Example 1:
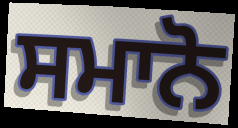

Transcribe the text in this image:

ਸਮਾਨੋ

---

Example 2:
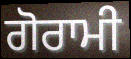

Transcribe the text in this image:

ਗੋਰਾਮੀ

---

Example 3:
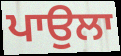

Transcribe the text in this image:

ਪਾਉਲਾ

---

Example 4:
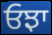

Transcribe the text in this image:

ਓਝਾ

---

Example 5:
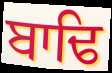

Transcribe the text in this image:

ਬਾਢਿ